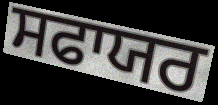
ਸਫਾਯਰ